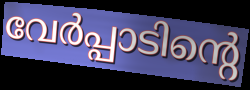
വേർപ്പാടിന്റെ